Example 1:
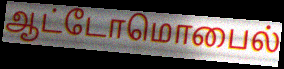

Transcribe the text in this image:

ஆட்டோமொபைல்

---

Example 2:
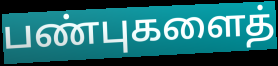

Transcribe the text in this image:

பண்புகளைத்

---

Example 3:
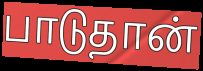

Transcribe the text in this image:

பாடுதான்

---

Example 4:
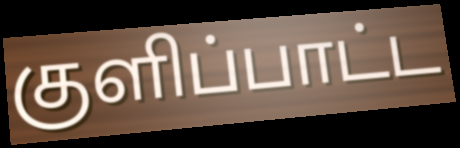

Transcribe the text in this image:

குளிப்பாட்ட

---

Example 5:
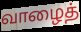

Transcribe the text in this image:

வாழைத்